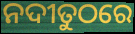
ନଦୀତୁଠରେ